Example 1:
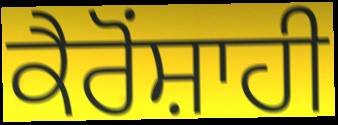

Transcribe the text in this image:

ਕੈਰੋਂਸ਼ਾਹੀ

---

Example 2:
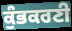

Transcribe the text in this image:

ਕੁੰਭਕਰਣੀ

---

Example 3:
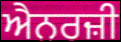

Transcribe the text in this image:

ਐਨਰਜ਼ੀ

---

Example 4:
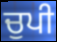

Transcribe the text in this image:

ਚੁਪੀ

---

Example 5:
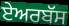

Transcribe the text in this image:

ਏਅਰਬੱਸ